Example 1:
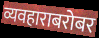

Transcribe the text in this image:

व्यवहाराबरोबर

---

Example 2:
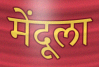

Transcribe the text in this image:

मेंदूला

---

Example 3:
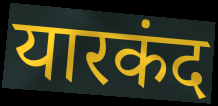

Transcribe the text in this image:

यारकंद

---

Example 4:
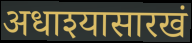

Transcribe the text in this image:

अधाश्यासारखं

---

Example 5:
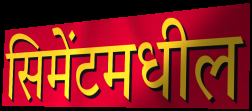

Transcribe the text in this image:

सिमेंटमधील